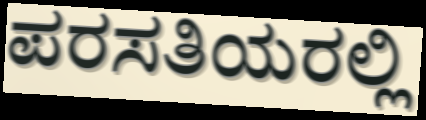
ಪರಸತಿಯರಲ್ಲಿ